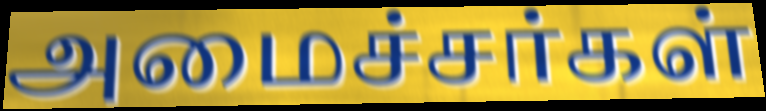
அமைச்சர்கள்